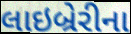
લાઇબ્રેરીના